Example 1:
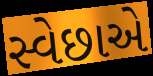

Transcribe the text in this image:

સ્વેછાએ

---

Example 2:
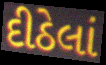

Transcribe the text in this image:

દીઠેલાં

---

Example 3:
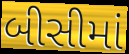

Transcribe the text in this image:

બીસીમાં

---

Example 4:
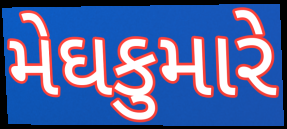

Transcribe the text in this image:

મેઘકુમારે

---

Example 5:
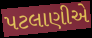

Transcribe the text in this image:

પટલાણીએ